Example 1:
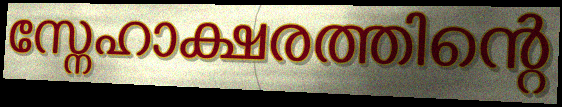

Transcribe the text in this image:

സ്നേഹാക്ഷരത്തിന്റെ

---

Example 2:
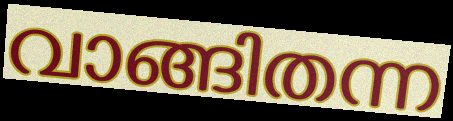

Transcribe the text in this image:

വാങ്ങിതന്ന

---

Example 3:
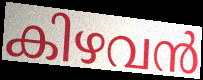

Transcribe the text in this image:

കിഴവൻ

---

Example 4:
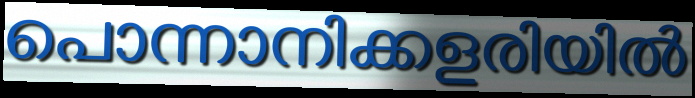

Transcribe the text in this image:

പൊന്നാനിക്കളരിയിൽ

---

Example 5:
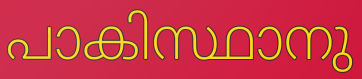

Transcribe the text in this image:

പാകിസ്ഥാനു